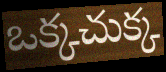
ఒక్కచుక్క